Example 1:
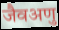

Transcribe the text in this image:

जैवअणु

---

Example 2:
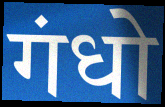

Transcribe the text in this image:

गंधो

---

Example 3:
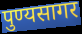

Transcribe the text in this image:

पुण्यसागर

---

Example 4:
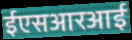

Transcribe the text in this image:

ईएसआरआई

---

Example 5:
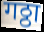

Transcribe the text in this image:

गठ्ठा